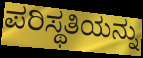
ಪರಿಸ್ಥತಿಯನ್ನು